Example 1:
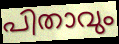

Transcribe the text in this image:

പിതാവും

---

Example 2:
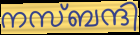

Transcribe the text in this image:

നസ്ബന്ദി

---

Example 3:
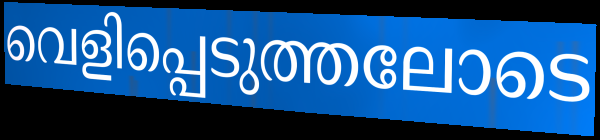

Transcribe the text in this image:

വെളിപ്പെടുത്തലോടെ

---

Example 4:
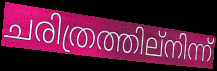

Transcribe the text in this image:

ചരിത്രത്തില്നിന്ന്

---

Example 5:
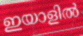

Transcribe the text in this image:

ഇയാളിൽ